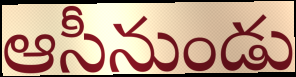
ఆసీనుండు